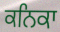
ਕਨਿਕਾ